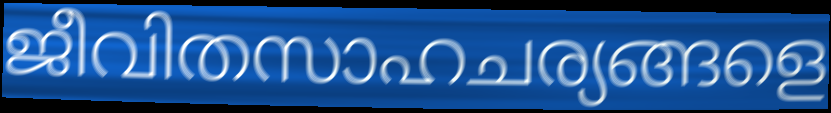
ജീവിതസാഹചര്യങ്ങളെ